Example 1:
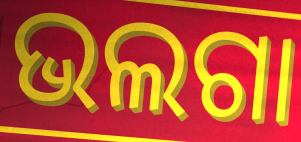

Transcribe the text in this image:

ଭଲଗା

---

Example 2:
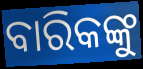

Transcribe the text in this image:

ବାରିକଙ୍କୁ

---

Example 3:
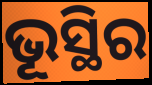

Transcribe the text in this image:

ଭୂସ୍ଥିର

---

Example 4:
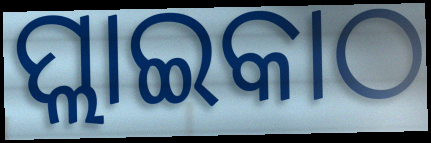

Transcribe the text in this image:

ପ୍ଲାଇକାଠ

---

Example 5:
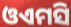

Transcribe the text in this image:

ଓଏମସି